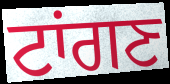
ਟਾਂਗਣ